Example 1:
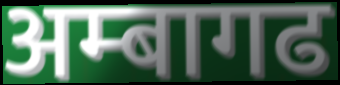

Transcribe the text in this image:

अम्बागढ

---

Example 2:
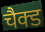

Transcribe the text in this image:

चैक्ड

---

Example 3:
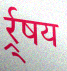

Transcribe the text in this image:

र्र्र्षय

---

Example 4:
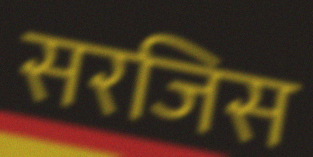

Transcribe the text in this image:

सरजिस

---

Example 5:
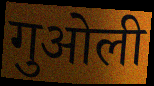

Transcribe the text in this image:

गुओली